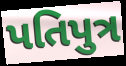
પતિપુત્ર